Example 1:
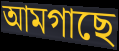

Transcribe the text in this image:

আমগাছে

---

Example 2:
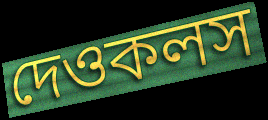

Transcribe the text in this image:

দেওকলস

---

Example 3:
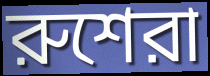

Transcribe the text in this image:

রুশেরা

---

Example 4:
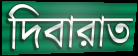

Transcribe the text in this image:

দিবারাত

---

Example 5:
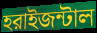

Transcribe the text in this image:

হরাইজন্টাল